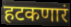
हटकणारं